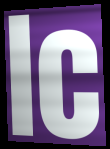
Ic